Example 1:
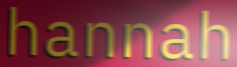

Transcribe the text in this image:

hannah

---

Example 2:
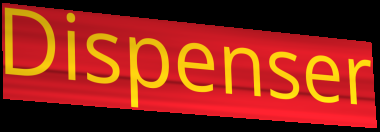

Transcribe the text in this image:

Dispenser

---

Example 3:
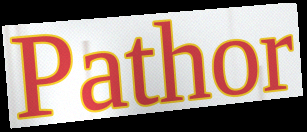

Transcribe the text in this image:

Pathor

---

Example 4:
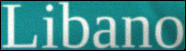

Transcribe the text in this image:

Libano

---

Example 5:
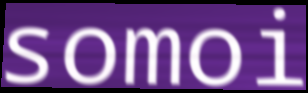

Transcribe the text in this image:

somoi